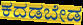
ಕದಡಬೇಡ